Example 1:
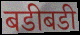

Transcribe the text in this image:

बडीबडी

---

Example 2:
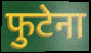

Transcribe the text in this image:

फुटेना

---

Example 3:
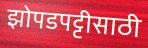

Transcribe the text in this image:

झोपडपट्टीसाठी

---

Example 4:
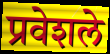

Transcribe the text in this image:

प्रवेशले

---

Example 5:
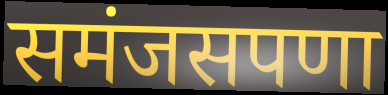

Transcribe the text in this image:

समंजसपणा